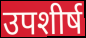
उपशीर्ष